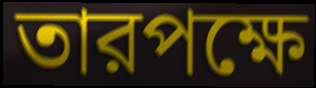
তারপক্ষে